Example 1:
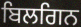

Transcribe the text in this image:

ਬਿਲਗਿਨ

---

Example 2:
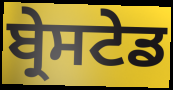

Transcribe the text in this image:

ਬ੍ਰੇਸਟੇਡ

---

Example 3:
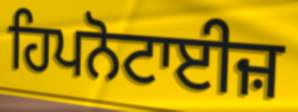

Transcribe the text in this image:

ਹਿਪਨੋਟਾਈਜ਼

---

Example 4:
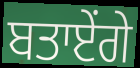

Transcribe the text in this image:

ਬਤਾਏਂਗੇ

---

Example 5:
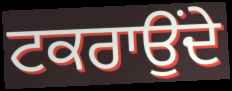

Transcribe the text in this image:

ਟਕਰਾਉਂਦੇ